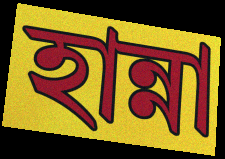
হান্না